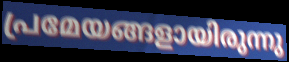
പ്രമേയങ്ങളായിരുന്നു